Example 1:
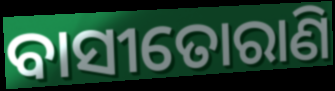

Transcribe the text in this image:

ବାସୀତୋରାଣି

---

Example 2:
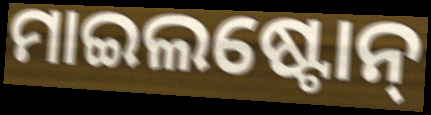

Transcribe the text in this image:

ମାଇଲଷ୍ଟୋନ୍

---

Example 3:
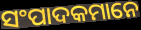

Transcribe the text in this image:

ସଂପାଦକମାନେ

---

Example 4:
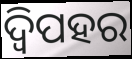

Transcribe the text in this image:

ଦ୍ୱିପହର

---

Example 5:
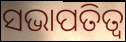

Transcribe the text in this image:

ସଭାପତିତ୍ଵ